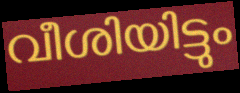
വീശിയിട്ടും